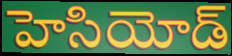
హెసియోడ్